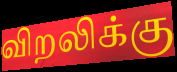
விறலிக்கு